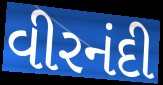
વીરનંદી